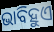
ଭାବିହୁଏ